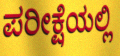
ಪರೀಕ್ಷೆಯಲ್ಲಿ